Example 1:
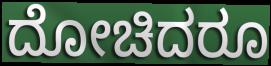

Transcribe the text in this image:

ದೋಚಿದರೂ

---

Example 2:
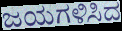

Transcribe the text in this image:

ಜಯಗಳಿಸಿದ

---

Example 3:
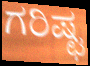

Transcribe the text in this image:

ಗರಿಷ್ಟ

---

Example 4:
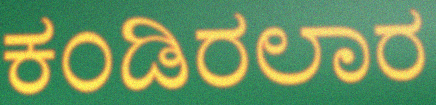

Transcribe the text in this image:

ಕಂಡಿರಲಾರ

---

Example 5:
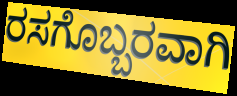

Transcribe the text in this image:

ರಸಗೊಬ್ಬರವಾಗಿ